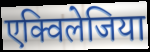
एक्विलेजिया